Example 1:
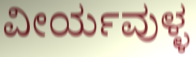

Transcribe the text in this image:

ವೀರ್ಯವುಳ್ಳ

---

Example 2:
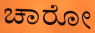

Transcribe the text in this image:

ಚಾರೋ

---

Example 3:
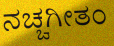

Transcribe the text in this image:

ನಚ್ಚಗೀತಂ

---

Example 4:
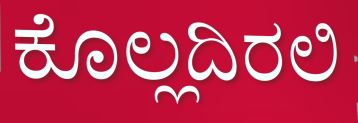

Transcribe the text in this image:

ಕೊಲ್ಲದಿರಲಿ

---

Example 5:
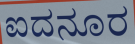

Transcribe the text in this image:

ಐದನೂರ